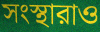
সংস্থারাও